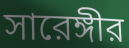
সারেঙ্গীর